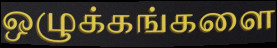
ஒழுக்கங்களை